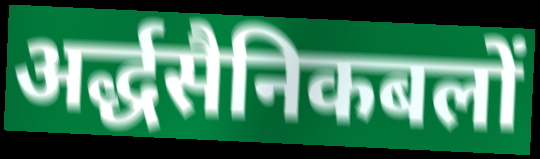
अर्द्धसैनिकबलों